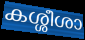
കശ്ശീശാ